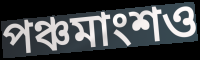
পঞ্চমাংশও